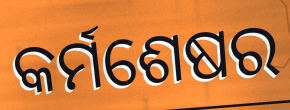
କର୍ମଶେଷର